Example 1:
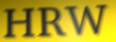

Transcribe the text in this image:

HRW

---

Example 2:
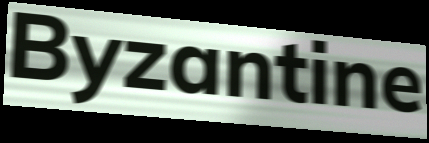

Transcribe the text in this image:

Byzantine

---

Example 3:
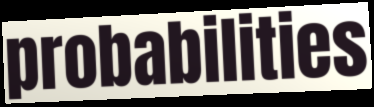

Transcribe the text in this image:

probabilities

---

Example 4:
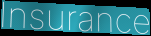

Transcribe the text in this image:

Insurance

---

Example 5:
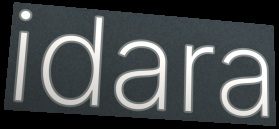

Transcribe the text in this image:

idara